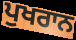
ਪੁਖਰਾਨ